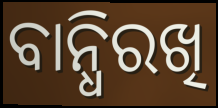
ବାନ୍ଧିରଖି